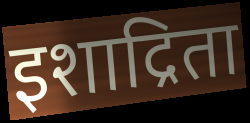
इशाद्रिता